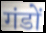
गंडों